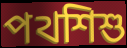
পথশিশু